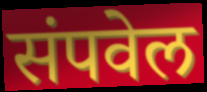
संपवेल